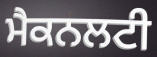
ਮੈਕਨਲਟੀ